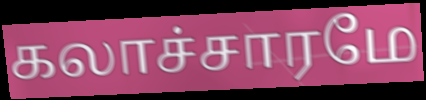
கலாச்சாரமே